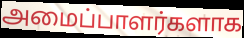
அமைப்பாளர்களாக